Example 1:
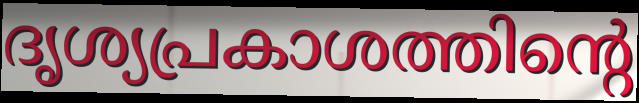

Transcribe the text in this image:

ദൃശ്യപ്രകാശത്തിന്റെ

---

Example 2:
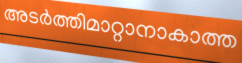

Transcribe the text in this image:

അടർത്തിമാറ്റാനാകാത്ത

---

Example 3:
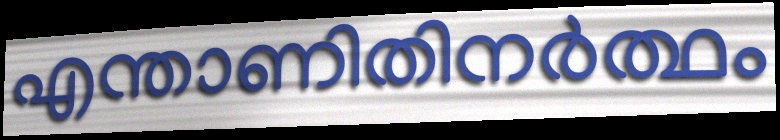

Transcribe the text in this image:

എന്താണിതിനർത്ഥം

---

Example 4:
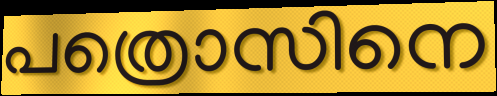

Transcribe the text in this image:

പത്രൊസിനെ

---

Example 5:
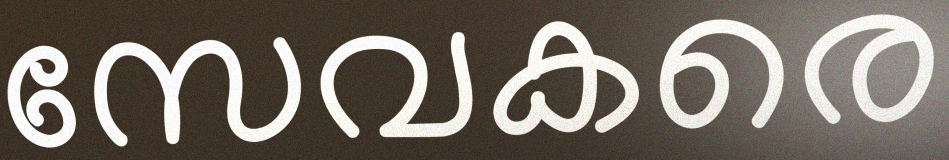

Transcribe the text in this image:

സേവകരെ